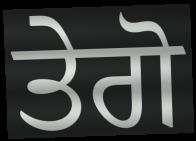
ਤੇਗੋ